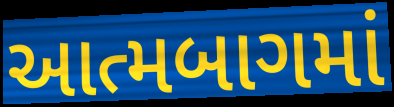
આત્મબાગમાં